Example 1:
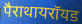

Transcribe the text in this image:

पैराथायरॉयड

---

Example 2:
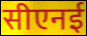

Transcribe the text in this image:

सीएनई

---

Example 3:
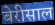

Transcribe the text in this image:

बेरीसाल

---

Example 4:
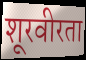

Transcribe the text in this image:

शूरवीरता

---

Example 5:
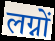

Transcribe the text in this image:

लग्नों